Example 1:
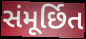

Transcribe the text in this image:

સંમૂર્છિત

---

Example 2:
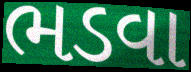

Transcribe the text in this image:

ભડવા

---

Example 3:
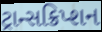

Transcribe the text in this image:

ટ્રાન્સક્રિપ્શન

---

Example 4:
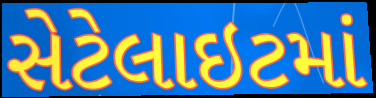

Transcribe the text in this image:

સેટેલાઇટમાં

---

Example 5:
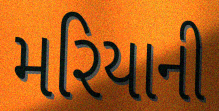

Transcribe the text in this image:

મરિયાની